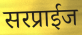
सरप्राईज